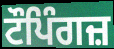
ਟੌਪਿੰਗਜ਼